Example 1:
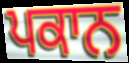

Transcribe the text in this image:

ਪਕਾਨ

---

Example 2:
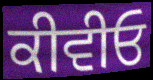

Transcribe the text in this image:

ਕੀਵੀਓ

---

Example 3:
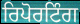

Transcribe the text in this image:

ਰਿਪੋਰਟਿੰਗ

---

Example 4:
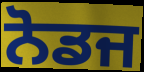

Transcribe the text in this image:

ਨੋਡਜ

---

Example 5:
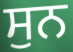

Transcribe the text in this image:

ਸੁਨ